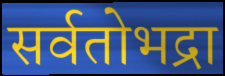
सर्वतोभद्रा